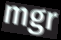
mgr